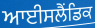
ਆਈਸਲੈਂਡਿਕ